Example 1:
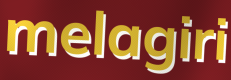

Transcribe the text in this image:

melagiri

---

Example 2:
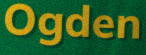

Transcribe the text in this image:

Ogden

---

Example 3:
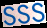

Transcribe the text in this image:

SSS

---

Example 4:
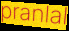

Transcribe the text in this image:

pranlal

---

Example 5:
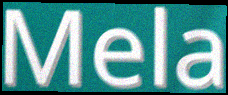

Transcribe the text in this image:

Mela